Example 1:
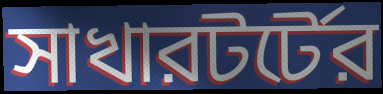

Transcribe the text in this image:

সাখারটর্টের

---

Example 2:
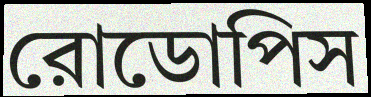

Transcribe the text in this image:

রোডোপিস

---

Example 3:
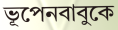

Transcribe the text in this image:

ভূপেনবাবুকে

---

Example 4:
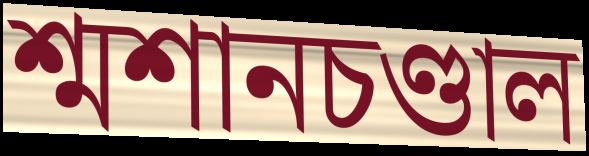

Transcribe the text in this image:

শ্মশানচণ্ডাল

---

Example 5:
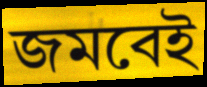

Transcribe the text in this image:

জমবেই